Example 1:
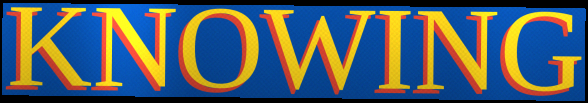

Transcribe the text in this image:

KNOWING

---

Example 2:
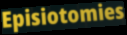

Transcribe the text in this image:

Episiotomies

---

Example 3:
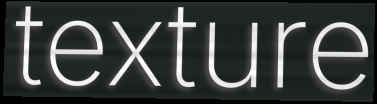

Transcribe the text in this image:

texture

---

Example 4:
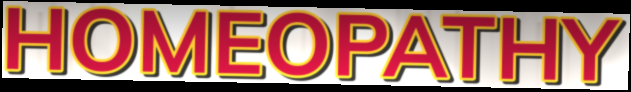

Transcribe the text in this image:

HOMEOPATHY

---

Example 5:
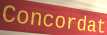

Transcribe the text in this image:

Concordat